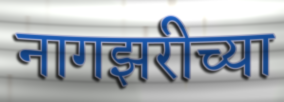
नागझरीच्या